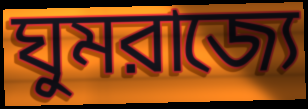
ঘুমরাজ্যে